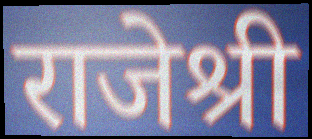
राजेश्री